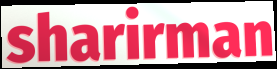
sharirman